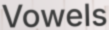
Vowels